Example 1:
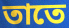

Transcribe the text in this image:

তাতে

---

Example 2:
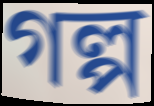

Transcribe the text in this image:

গল্প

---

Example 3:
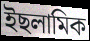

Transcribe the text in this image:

ইছলামিক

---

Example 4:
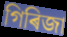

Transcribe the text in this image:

গিৰিজা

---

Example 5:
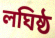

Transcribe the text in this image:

লঘিষ্ঠ